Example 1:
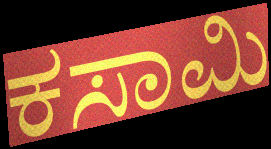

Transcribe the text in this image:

ಕಸಾಮಿ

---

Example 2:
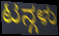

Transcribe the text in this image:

ಟನ್ಗಳು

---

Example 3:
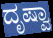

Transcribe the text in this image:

ದೃಷ್ವಾ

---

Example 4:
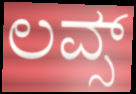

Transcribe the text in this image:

ಲವ್ಸ್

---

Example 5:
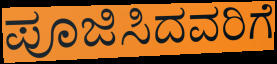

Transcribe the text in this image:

ಪೂಜಿಸಿದವರಿಗೆ